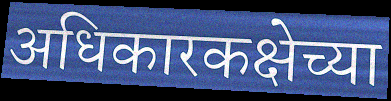
अधिकारकक्षेच्या